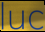
luc